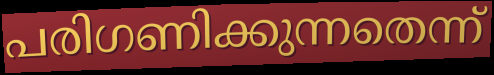
പരിഗണിക്കുന്നതെന്ന്